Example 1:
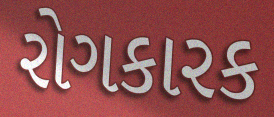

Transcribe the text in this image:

રોગકારક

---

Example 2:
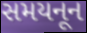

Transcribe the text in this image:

સમયનૂન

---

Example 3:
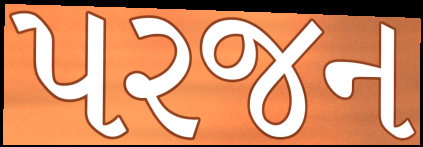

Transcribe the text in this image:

પરજન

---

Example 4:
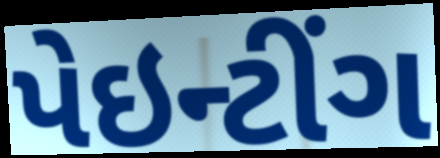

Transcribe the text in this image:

પેઇન્ટીંગ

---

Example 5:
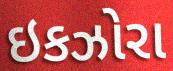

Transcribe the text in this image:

ઇકઝોરા